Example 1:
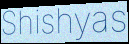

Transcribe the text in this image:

Shishyas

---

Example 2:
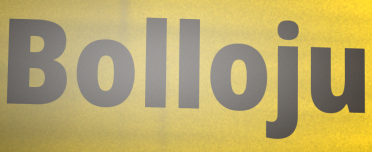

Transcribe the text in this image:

Bolloju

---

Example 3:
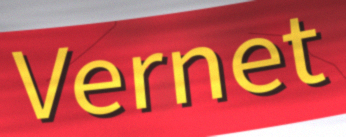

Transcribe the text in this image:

Vernet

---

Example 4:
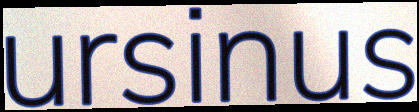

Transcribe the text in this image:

ursinus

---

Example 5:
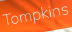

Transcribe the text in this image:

Tompkins